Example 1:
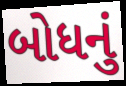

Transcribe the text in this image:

બોધનું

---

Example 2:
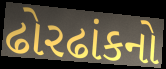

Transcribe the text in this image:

ઢોરઢાંકનો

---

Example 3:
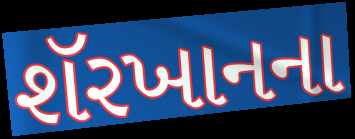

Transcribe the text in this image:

શૅરખાનના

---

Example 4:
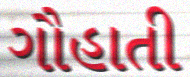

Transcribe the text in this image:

ગૌહાતી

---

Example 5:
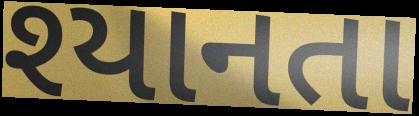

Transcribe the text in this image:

શ્યાનતા